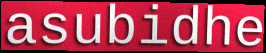
asubidhe